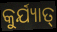
କୁର୍ଯ୍ୟାତ୍